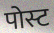
पोस्‍ट